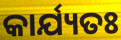
କାର୍ଯ୍ୟତଃ